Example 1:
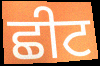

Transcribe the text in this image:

ਛੀਟ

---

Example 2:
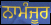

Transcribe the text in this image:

ਨਾਮੰਜੂਰ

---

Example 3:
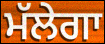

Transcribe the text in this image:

ਮੱਲੇਗਾ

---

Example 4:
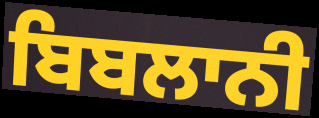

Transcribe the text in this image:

ਬਿਬਲਾਨੀ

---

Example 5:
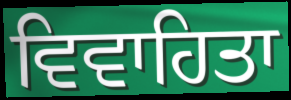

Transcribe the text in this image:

ਵਿਵਾਹਿਤਾ